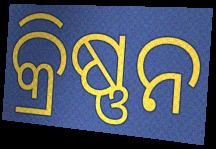
କ୍ରିଷ୍ଣନ